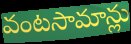
వంటసామాన్లు